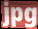
jpg